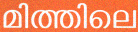
മിത്തിലെ